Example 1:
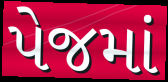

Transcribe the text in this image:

પેજમાં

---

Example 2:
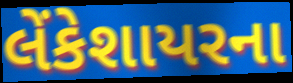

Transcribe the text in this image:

લેંકેશાયરના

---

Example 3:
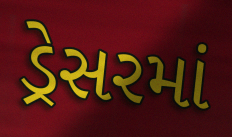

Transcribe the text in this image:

ડ્રેસરમાં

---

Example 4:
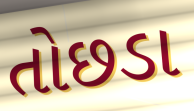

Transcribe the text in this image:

તોછડા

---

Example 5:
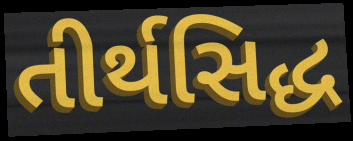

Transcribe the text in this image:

તીર્થસિદ્ધ